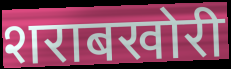
शराबखोरी